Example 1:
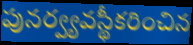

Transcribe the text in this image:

పునర్వ్యవస్థీకరించిన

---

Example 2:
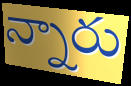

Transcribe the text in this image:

న్నారు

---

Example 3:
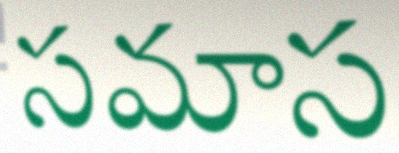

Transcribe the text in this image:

సమాస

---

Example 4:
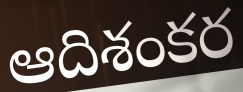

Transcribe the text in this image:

ఆదిశంకర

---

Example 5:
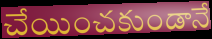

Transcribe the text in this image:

చేయించకుండానే